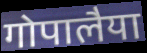
गोपालैया